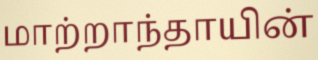
மாற்றாந்தாயின்